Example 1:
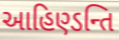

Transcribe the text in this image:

આહિણ્ડન્તિ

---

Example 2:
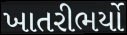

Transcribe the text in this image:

ખાતરીભર્યો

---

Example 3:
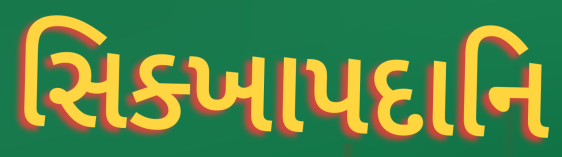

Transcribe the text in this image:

સિક્ખાપદાનિ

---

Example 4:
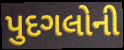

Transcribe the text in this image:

પુદગલોની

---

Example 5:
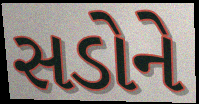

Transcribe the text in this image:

સડોને